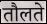
तौलते